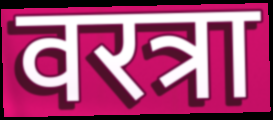
वरत्रा